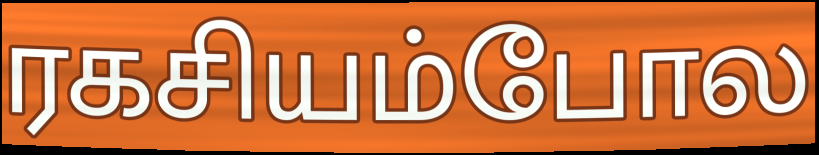
ரகசியம்போல